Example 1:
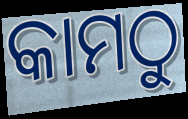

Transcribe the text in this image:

କାମଠୁ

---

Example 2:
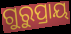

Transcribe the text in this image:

ଗୁରୁପ୍ରାୟ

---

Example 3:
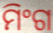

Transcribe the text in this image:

ମିଂଗ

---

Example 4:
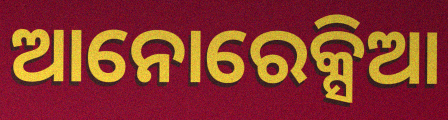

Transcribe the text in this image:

ଆନୋରେକ୍ସିଆ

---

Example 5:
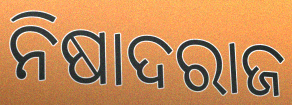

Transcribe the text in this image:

ନିଷାଦରାଜ